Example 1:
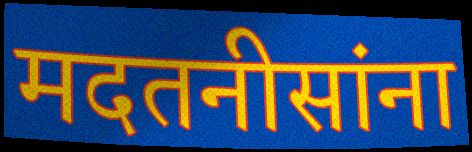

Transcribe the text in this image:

मदतनीसांना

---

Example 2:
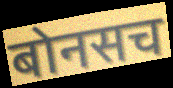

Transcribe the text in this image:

बोनसच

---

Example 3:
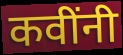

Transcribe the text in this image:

कवींनी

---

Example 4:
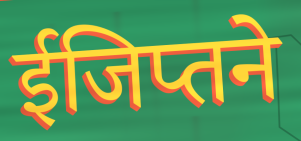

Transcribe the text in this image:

ईजिप्तने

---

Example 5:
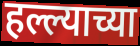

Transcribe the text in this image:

हल्ल्याच्या